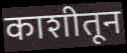
काशीतून